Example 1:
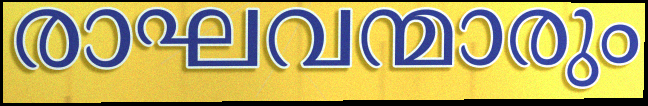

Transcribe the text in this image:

രാഘവന്മാരും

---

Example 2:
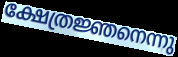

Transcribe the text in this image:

ക്ഷേത്രജ്ഞനെന്നു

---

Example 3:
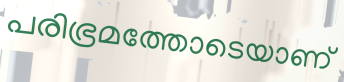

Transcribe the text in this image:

പരിഭ്രമത്തോടെയാണ്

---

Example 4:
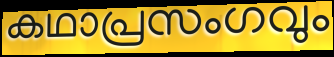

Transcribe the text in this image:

കഥാപ്രസംഗവും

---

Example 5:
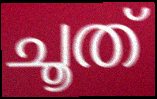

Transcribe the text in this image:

ചൂത്